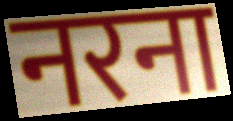
नरना